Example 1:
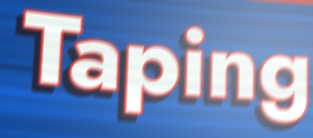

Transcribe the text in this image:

Taping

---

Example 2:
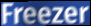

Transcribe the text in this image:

Freezer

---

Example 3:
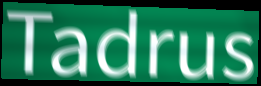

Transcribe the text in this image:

Tadrus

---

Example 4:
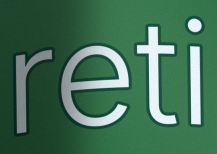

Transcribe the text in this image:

reti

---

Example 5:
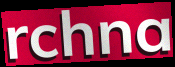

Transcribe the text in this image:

rchna